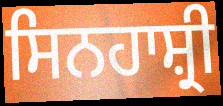
ਸਿਨਹਾਸ਼੍ਰੀ